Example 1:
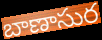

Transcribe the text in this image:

బాణాసుర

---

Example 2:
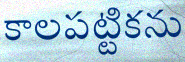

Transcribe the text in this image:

కాలపట్టికను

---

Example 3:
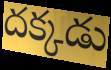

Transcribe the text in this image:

దక్కడు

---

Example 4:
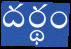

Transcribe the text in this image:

దర్థం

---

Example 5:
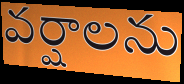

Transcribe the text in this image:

వర్షాలను